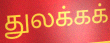
துலக்கக்